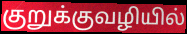
குறுக்குவழியில்